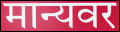
मान्यवर